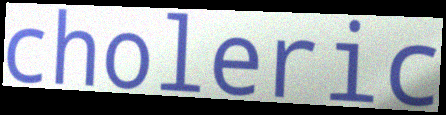
choleric